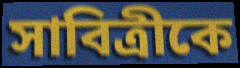
সাবিত্রীকে